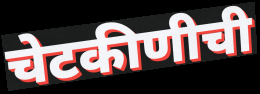
चेटकीणीची